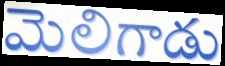
మెలిగాడు